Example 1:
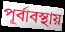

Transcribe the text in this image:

পূর্বাবস্থায়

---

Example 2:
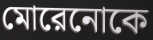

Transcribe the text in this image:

মোরেনোকে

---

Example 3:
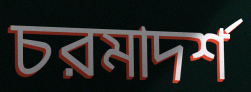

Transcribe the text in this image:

চরমাদর্শ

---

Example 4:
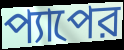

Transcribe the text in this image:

প্যাপের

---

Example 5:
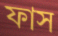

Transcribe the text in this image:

ফাস